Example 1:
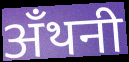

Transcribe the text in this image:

अँथनी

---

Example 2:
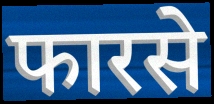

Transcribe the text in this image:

फारसे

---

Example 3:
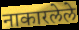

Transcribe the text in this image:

नाकारलेले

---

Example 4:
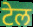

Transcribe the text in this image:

टेल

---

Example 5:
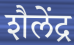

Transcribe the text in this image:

शैलेंद्र